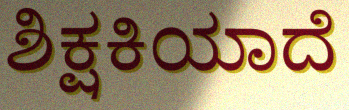
ಶಿಕ್ಷಕಿಯಾದೆ